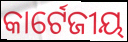
କାର୍ଟେଜୀୟ